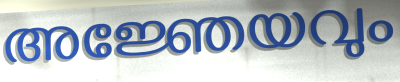
അജ്ഞേയവും